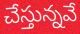
చేస్తున్నవే